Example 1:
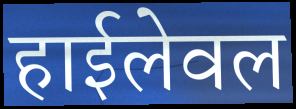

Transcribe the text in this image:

हाईलेवल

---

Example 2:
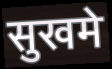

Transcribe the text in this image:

सुखमे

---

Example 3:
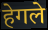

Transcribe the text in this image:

हेगले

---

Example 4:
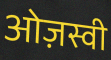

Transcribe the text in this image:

ओज़स्वी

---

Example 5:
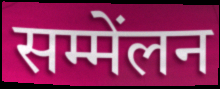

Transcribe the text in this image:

सम्मेंलन